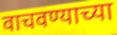
वाचवण्याच्या